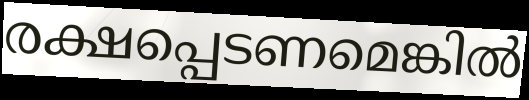
രക്ഷപ്പെടണമെങ്കിൽ